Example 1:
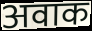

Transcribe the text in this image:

अवाक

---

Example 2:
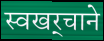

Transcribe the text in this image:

स्वखर्चाने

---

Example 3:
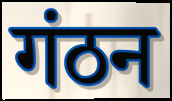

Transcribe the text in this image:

गंठन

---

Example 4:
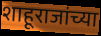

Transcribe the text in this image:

शाहूराजांच्या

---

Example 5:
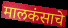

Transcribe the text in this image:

मालकंसाचे